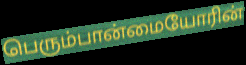
பெரும்பான்மையோரின்